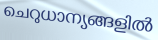
ചെറുധാന്യങ്ങളിൽ